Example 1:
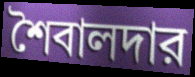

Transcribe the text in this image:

শৈবালদার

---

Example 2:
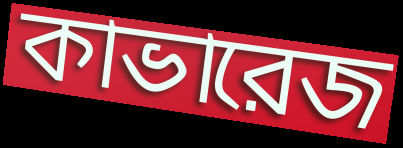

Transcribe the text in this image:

কাভারেজ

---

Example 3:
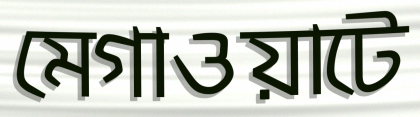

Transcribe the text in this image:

মেগাওয়াটে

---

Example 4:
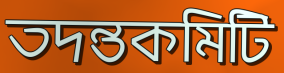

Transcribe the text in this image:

তদন্তকমিটি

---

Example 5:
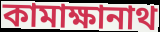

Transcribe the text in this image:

কামাক্ষানাথ